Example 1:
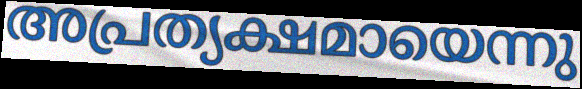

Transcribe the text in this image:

അപ്രത്യക്ഷമായെന്നു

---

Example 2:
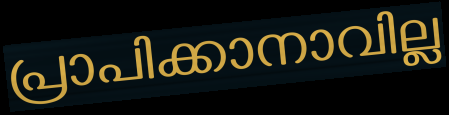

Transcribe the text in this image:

പ്രാപിക്കാനാവില്ല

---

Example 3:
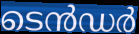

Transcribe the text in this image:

ടെൻഡർ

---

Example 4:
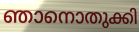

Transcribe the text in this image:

ഞാനൊതുക്കി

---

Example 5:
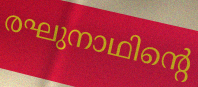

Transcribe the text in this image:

രഘുനാഥിന്റെ